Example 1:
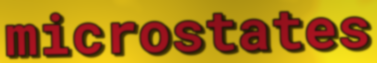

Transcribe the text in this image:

microstates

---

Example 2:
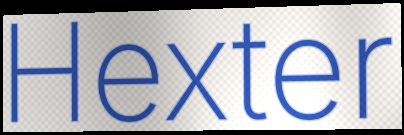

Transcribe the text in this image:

Hexter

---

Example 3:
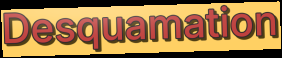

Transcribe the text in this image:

Desquamation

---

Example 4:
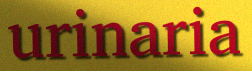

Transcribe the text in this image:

urinaria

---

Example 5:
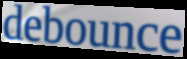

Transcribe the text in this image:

debounce